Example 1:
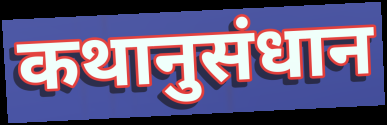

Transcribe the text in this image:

कथानुसंधान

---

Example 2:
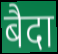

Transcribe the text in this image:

बैदा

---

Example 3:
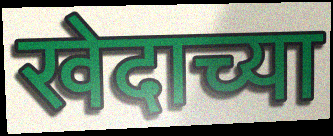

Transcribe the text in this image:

खेदाच्या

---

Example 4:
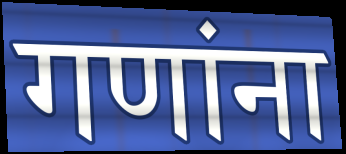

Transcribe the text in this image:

गणांना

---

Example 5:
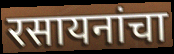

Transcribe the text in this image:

रसायनांचा